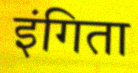
इंगिता